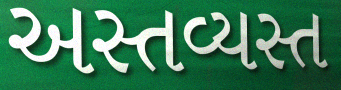
અસ્તવ્યસ્ત